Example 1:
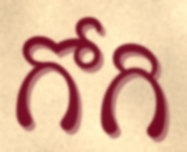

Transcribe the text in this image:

గోగి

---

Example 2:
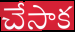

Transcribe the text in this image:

చేసాక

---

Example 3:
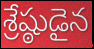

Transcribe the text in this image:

శ్రేష్ఠుడైన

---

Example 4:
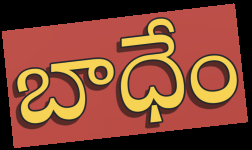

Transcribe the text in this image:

బాధేం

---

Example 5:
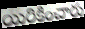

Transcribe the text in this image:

యిరికించారు